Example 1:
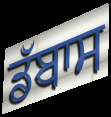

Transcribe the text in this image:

ਡੱਬਾਸ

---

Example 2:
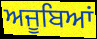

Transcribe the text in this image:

ਅਜੂਬਿਆਂ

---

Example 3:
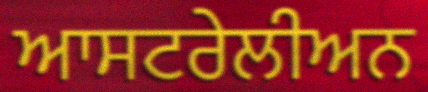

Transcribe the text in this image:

ਆਸਟਰੇਲੀਅਨ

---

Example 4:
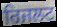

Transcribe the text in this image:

ਰਿਜਲਟ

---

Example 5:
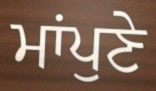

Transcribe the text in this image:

ਮਾਂਪੁਣੇ